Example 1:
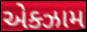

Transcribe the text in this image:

એક્ઝામ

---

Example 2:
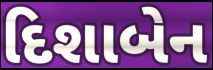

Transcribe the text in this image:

દિશાબેન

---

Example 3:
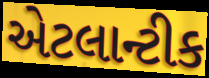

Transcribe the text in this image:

એટલાન્ટીક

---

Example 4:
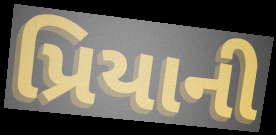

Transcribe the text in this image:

પ્રિયાની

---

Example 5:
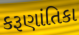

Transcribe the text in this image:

કરૂણાંતિકા